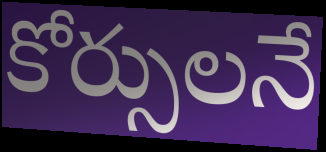
కోర్సులనే